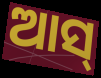
ଆସ୍